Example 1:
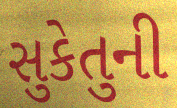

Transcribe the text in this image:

સુકેતુની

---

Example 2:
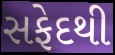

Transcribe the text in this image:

સફેદથી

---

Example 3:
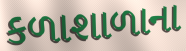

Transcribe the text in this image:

કળાશાળાના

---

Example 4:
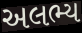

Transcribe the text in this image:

અલભ્ય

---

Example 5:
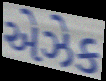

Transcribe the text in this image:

એઝેક